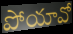
పోయావో